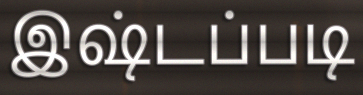
இஷ்டப்படி